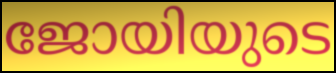
ജോയിയുടെ